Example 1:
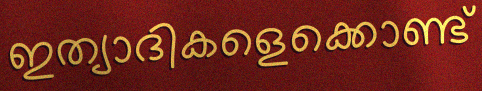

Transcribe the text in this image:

ഇത്യാദികളെക്കൊണ്ട്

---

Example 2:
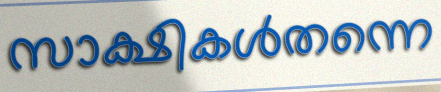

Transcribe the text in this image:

സാക്ഷികൾതന്നെ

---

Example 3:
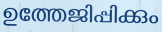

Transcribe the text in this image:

ഉത്തേജിപ്പിക്കും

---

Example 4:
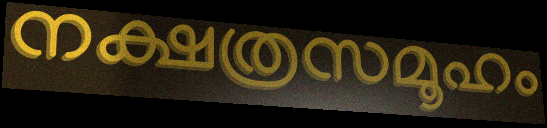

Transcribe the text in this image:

നക്ഷത്രസമൂഹം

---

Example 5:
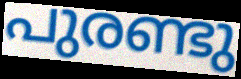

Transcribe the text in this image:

പുരണ്ടു